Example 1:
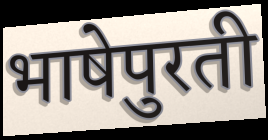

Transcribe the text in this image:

भाषेपुरती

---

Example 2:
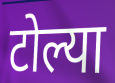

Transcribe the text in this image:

टोल्या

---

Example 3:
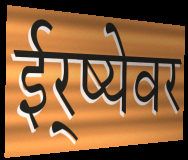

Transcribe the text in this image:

ईर्ष्येवर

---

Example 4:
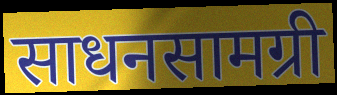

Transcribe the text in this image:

साधनसामग्री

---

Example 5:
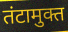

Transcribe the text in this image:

तंटामुक्त